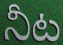
నీట